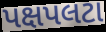
પક્ષપલટા